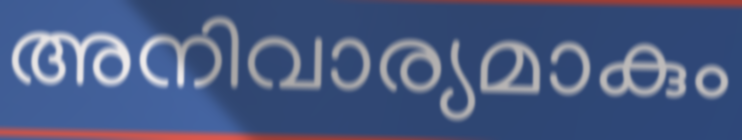
അനിവാര്യമാകും